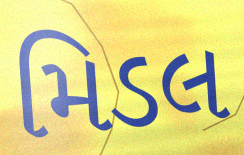
મિડલ